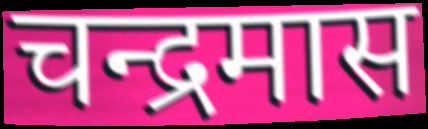
चन्द्रमास